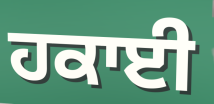
ਹਕਾਈ